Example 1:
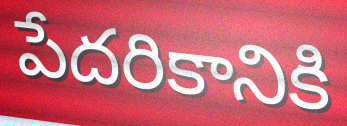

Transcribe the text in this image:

పేదరికానికి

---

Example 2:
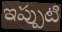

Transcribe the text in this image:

ఇప్పుటి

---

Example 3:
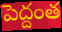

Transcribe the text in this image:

పెద్దంత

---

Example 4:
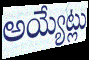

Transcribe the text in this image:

అయ్యేట్లు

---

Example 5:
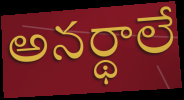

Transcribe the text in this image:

అనర్థాలే